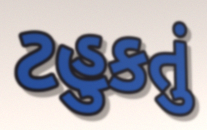
ટહુકતું